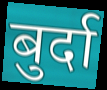
बुर्दा